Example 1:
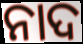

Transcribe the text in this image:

ନାଦ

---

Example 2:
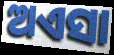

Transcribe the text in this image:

ଅଏସା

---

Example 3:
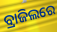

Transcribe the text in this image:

ବ୍ରାଜିଲରେ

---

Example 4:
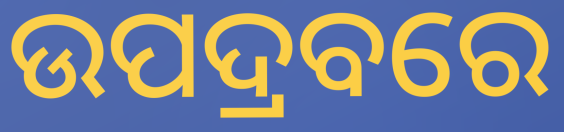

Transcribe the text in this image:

ଉପଦ୍ରବରେ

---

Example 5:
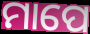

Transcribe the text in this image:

ମାପେ